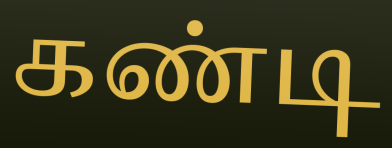
கண்டி